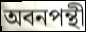
অবনপন্থী